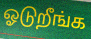
ஓடுறீங்க